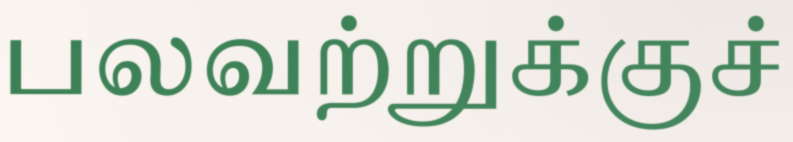
பலவற்றுக்குச்